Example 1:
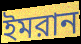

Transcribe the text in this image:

ইমরান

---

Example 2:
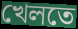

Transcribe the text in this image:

খেলতে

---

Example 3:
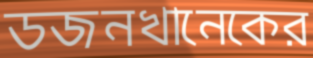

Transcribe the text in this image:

ডজনখানেকের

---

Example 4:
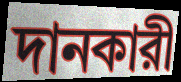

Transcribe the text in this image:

দানকারী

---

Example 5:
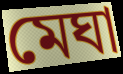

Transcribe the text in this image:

মেঘা